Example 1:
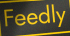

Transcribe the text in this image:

Feedly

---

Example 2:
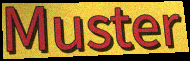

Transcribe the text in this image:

Muster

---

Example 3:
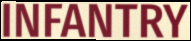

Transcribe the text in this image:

INFANTRY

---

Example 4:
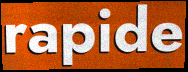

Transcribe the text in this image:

rapide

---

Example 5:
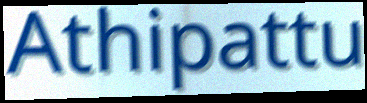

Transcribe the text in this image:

Athipattu